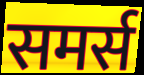
समर्स